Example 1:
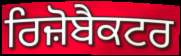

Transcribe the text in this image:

ਰਿਜ਼ੋਬੈਕਟਰ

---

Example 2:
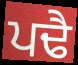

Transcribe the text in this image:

ਪਢੈ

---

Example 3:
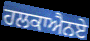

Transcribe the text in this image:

ਹਲਕਾਐਨਏ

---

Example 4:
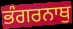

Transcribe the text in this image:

ਭੰਗਰਨਾਥੁ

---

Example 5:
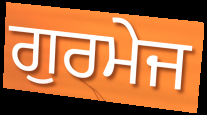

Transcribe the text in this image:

ਗੁਰਮੇਜ